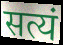
सत्यं